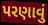
પરણાવું